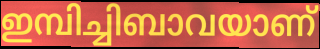
ഇമ്പിച്ചിബാവയാണ്